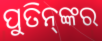
ପୁତିନ୍‌ଙ୍କର